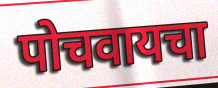
पोचवायचा